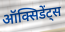
ऑक्सिडेंट्स